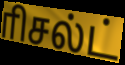
ரிசல்ட்